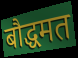
बौद्धमत